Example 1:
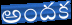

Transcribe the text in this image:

అందక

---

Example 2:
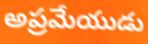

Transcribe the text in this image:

అప్రమేయుడు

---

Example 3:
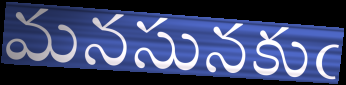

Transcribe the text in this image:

మనసునకుఁ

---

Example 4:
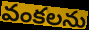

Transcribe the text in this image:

వంకలను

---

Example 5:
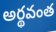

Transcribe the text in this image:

అర్థవంత